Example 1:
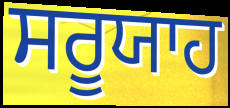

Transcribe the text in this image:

ਸਰੂਯਾਹ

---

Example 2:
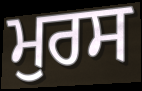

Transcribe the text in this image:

ਮੁਰਸ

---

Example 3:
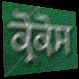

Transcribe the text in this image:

ਕ੍ਰੋਕੋਸ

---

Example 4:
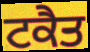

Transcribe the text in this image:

ਟਕੈਤ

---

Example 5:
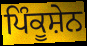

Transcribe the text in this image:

ਪਿੰਕੂਸ਼ੇਨ